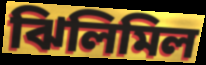
ঝিলিমিল